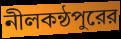
নীলকন্ঠপুরের